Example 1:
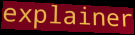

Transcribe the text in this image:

explainer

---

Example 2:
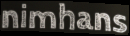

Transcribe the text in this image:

nimhans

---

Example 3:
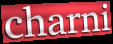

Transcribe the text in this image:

charni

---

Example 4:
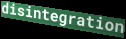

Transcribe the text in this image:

disintegration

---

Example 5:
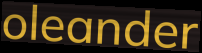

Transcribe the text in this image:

oleander